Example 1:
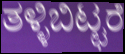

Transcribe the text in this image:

ತಳ್ಳಿಬಿಟ್ಟರೆ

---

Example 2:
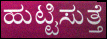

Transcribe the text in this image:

ಹುಟ್ಟಿಸುತ್ತೆ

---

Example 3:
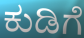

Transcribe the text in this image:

ಕುಡಿಗೆ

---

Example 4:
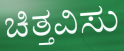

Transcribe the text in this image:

ಚಿತ್ತವಿಸು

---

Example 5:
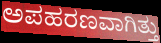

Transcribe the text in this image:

ಅಪಹರಣವಾಗಿತ್ತು